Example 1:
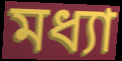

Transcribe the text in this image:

মধ্যা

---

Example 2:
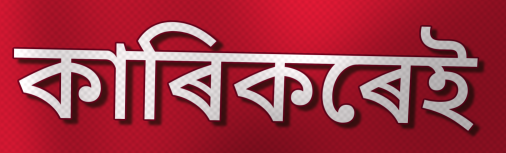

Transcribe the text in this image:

কাৰিকৰেই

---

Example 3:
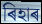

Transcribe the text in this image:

ৰিহাৰ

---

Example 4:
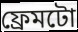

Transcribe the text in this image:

ফ্ৰেমটো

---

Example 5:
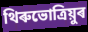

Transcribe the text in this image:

থিৰুভোত্ৰিয়ুৰ